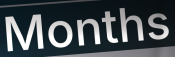
Months